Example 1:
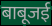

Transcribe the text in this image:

बाबूजई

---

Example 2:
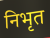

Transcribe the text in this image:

निभृत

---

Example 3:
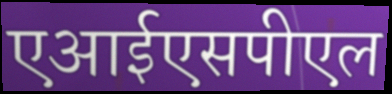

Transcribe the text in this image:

एआईएसपीएल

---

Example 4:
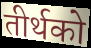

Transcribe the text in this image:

तीर्थको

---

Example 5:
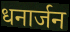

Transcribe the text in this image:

धनार्जन